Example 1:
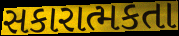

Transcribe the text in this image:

સકારાત્મકતા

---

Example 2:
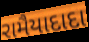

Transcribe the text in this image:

રામૈયાદાદા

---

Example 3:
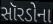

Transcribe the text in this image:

સૉરડોના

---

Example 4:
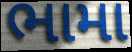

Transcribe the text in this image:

ભામા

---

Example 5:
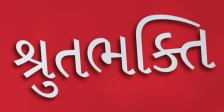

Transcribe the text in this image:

શ્રુતભક્તિ